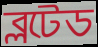
ব্লটেড